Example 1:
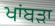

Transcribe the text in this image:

ਖਾਂਬੜਾ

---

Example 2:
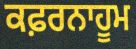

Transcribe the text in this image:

ਕਫ਼ਰਨਾਹੂਮ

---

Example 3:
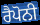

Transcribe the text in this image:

ਰੈਪੋਨੀ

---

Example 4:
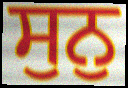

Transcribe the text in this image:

ਸੁਨੁ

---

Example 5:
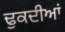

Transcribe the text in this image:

ਢੁਕਦੀਆਂ